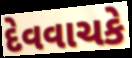
દેવવાચકે